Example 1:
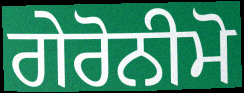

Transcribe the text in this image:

ਗੇਰੋਨੀਮੋ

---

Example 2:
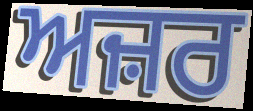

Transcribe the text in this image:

ਅਜ਼ਰ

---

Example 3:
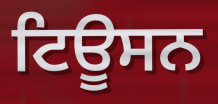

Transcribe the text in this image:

ਟਿਊਸਨ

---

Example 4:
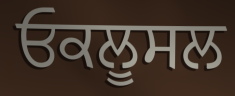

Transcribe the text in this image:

ਓਕਲੂਸਲ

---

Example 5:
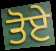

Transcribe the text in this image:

ਤੋਏ